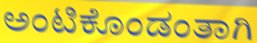
ಅಂಟಿಕೊಂಡಂತಾಗಿ